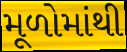
મૂળોમાંથી